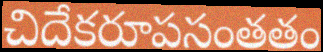
చిదేకరూపసంతతం